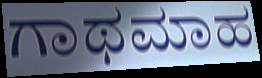
ಗಾಥಮಾಹ